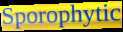
Sporophytic